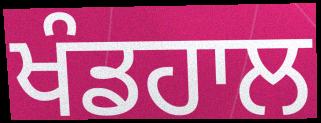
ਖੰਡਹਾਲ